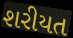
શરીયત